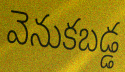
వెనుకబడ్డ